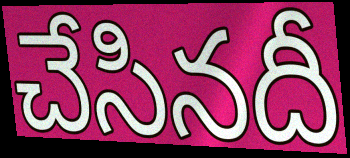
చేసినదీ